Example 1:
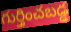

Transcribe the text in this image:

గుర్తించబడ్డ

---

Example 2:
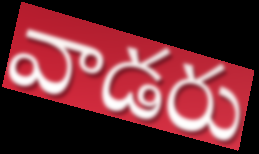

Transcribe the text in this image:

వాడరు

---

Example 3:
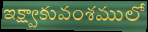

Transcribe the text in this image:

ఇక్ష్వాకువంశములో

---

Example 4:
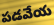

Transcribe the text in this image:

పడవేయ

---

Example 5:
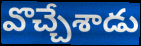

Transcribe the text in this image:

వొచ్చేశాడు